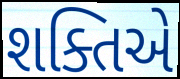
શક્તિએ